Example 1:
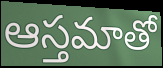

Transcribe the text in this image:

ఆస్తమాతో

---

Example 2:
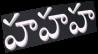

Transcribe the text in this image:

హహహ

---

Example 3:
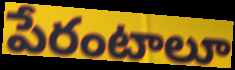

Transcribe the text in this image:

పేరంటాలూ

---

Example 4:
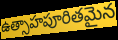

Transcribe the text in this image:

ఉత్సాహపూరితమైన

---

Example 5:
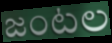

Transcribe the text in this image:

జంటల